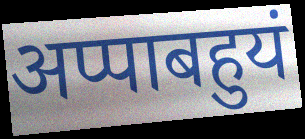
अप्पाबहुयं